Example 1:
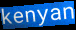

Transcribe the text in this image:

kenyan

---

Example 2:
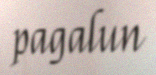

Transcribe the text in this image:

pagalun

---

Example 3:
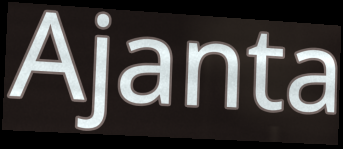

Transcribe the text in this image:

Ajanta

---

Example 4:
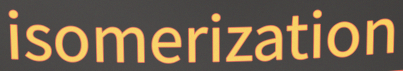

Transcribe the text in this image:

isomerization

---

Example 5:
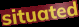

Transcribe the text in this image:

situated